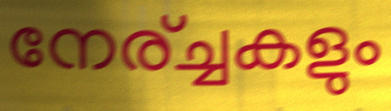
നേര്ച്ചകളും